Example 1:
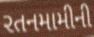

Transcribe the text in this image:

રતનમામીની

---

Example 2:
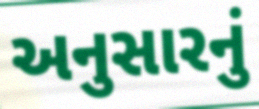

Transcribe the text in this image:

અનુસારનું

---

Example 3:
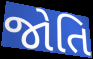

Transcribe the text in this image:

જોતિ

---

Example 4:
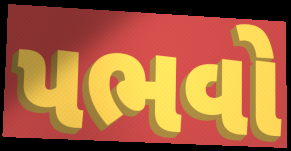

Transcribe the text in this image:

પભવો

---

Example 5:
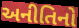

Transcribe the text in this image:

અનીતિનો